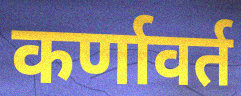
कर्णावर्त